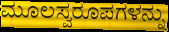
ಮೂಲಸ್ವರೂಪಗಳನ್ನು